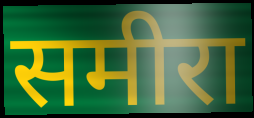
समीरा